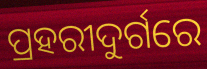
ପ୍ରହରୀଦୁର୍ଗରେ